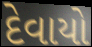
દેવાયો